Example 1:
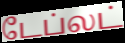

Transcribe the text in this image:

டேப்லட்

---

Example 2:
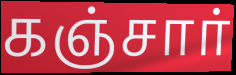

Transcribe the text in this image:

கஞ்சார்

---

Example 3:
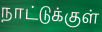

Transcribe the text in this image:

நாட்டுக்குள்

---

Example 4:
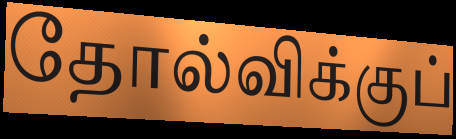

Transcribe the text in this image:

தோல்விக்குப்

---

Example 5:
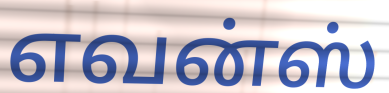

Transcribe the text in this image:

எவன்ஸ்